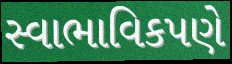
સ્વાભાવિકપણે